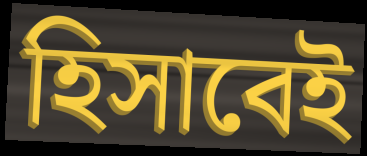
হিসাবেই